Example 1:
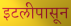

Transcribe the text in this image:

इटलीपासून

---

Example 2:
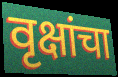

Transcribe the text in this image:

वृक्षांचा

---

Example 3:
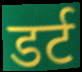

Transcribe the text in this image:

डर्ट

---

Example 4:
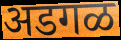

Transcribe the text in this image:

अडगळ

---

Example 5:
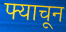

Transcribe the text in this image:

फ्याचून